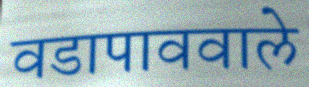
वडापाववाले